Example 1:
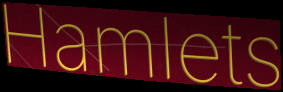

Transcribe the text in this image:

Hamlets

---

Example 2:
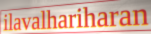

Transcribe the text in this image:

ilavalhariharan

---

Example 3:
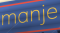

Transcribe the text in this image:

manje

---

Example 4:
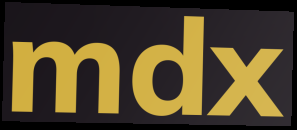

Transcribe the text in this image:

mdx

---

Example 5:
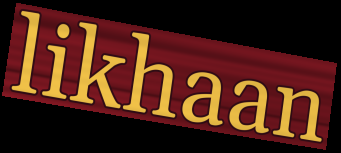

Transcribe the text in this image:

likhaan